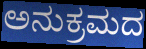
ಅನುಕ್ರಮದ